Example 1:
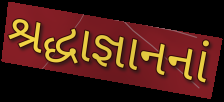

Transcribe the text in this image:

શ્રદ્ધાજ્ઞાનનાં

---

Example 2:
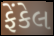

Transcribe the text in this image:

ફેંકેલ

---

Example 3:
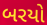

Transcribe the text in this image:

બરયો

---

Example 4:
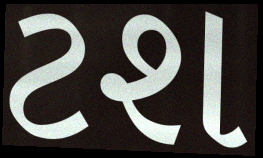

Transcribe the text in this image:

ટશ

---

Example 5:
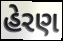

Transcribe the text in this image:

હેરણ